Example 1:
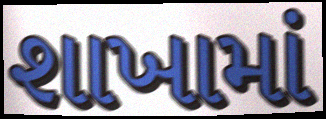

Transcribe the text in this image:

શાખામાં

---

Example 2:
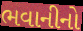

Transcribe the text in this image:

ભવાનીનો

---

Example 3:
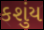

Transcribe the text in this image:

કશુંય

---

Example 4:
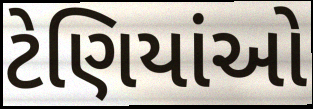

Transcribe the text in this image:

ટેણિયાંઓ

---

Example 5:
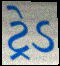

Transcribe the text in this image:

ટ્રેડ